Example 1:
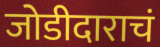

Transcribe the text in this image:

जोडीदाराचं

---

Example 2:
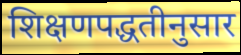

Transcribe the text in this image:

शिक्षणपद्धतीनुसार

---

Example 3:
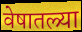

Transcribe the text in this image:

वेषातल्या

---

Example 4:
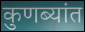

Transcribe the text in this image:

कुणब्यांत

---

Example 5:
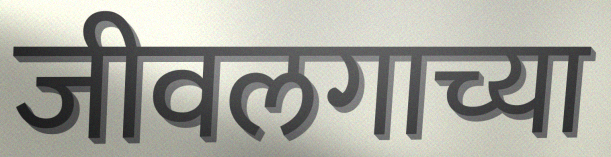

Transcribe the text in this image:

जीवलगाच्या